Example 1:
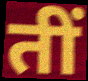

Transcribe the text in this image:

तीं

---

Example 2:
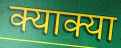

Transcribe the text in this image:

क्याक्या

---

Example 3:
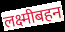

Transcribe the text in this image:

लक्ष्मीबहन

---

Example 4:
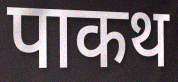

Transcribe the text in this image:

पाकथ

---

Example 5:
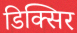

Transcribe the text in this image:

डिक्सिर